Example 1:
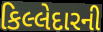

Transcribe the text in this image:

કિલ્લેદારની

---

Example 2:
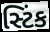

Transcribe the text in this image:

સ્ટિંક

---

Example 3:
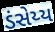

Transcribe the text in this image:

ડંસેય્ય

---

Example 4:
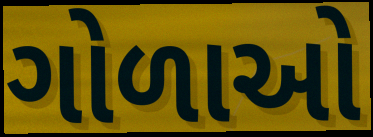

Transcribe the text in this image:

ગોળાઓ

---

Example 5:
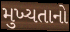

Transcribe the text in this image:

મુખ્યતાનો